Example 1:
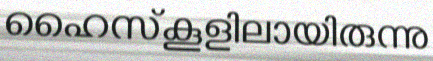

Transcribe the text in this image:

ഹൈസ്‌കൂളിലായിരുന്നു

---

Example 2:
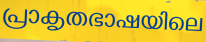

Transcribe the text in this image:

പ്രാകൃതഭാഷയിലെ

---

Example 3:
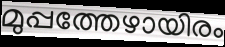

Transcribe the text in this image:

മുപ്പത്തേഴായിരം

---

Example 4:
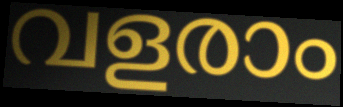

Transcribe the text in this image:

വളരാം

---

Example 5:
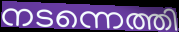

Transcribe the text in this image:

നടന്നെത്തി